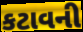
કટાવની